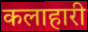
कलाहारी